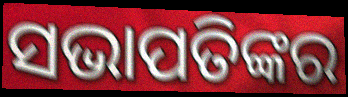
ସଭାପତିଙ୍କର